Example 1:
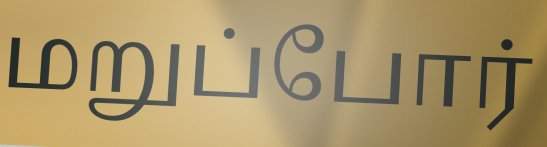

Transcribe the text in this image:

மறுப்போர்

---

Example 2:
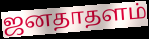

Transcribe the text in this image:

ஜனதாதளம்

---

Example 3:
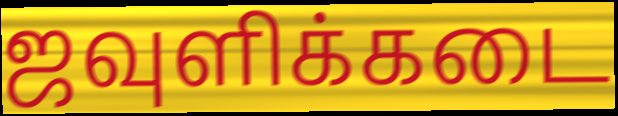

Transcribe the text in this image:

ஜவுளிக்கடை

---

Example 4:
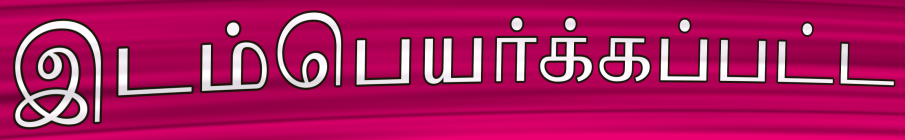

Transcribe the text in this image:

இடம்பெயர்க்கப்பட்ட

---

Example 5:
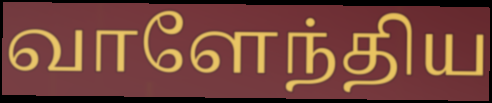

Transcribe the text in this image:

வாளேந்திய